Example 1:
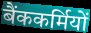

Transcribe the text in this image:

बैंककर्मियों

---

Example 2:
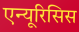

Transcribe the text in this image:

एन्यूरिसिस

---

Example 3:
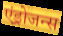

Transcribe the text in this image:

एंड्रोजन्स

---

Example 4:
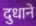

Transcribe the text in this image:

दुधाने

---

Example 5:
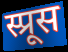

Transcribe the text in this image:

स्प्रूस